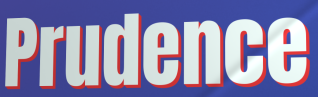
Prudence